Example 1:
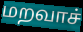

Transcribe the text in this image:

மறவாச்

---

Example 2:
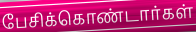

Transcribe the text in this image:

பேசிக்கொண்டார்கள்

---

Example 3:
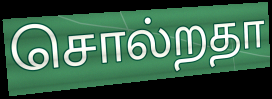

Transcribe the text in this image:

சொல்றதா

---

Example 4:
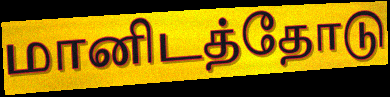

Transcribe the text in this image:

மானிடத்தோடு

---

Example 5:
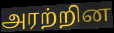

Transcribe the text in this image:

அரற்றின